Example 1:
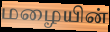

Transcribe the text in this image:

மழையின்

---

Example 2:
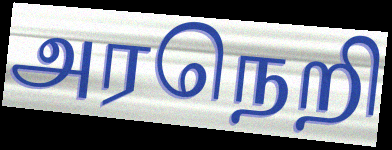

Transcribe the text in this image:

அரநெறி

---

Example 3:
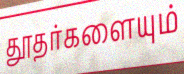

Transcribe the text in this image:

தூதர்களையும்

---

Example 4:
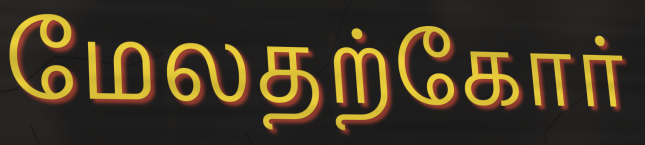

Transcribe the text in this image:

மேலதற்கோர்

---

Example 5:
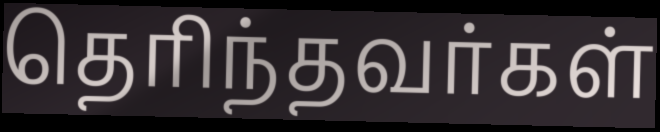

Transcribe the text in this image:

தெரிந்தவர்கள்